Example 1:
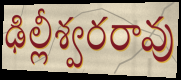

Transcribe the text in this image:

ఢిల్లీశ్వరరావు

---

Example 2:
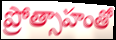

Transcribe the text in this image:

ప్రోత్సాహంతో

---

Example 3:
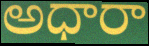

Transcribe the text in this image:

అధారా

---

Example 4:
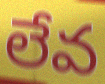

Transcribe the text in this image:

లేవ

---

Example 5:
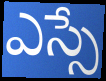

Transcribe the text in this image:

ఎస్సే